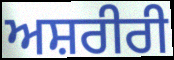
ਅਸ਼ਰੀਰੀ